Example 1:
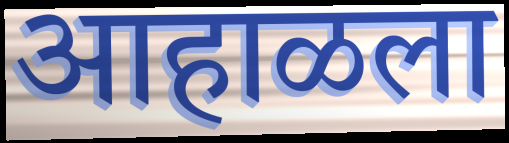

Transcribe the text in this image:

आहाळला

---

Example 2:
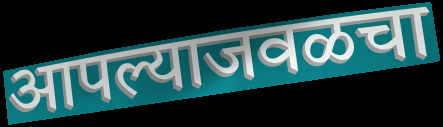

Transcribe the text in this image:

आपल्याजवळचा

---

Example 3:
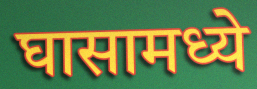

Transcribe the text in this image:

घासामध्ये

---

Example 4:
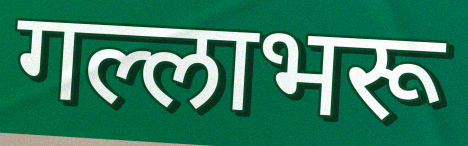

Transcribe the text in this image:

गल्लाभरू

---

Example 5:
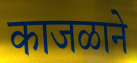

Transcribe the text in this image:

काजळाने